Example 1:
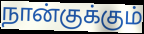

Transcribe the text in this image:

நான்குக்கும்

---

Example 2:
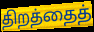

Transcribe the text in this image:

திறத்தைத்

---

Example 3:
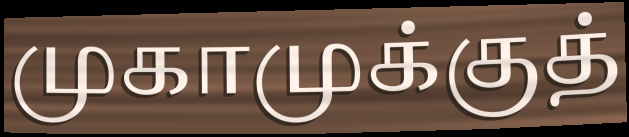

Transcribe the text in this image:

முகாமுக்குத்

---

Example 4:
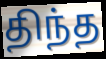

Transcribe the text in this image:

திந்த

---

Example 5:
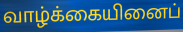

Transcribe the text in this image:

வாழ்க்கையினைப்